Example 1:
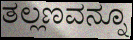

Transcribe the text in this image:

ತಲ್ಲಣವನ್ನೂ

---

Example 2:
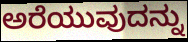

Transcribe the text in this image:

ಅರೆಯುವುದನ್ನು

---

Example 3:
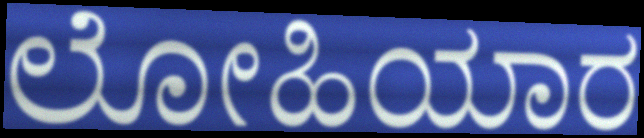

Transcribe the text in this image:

ಲೋಹಿಯಾರ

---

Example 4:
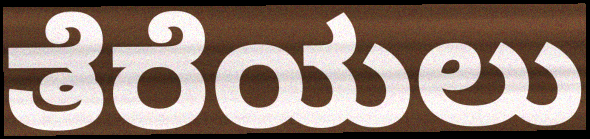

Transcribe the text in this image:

ತೆರೆಯಲು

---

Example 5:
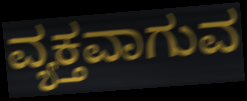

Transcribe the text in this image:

ವ್ಯಕ್ತವಾಗುವ